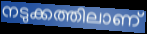
നടുക്കത്തിലാണ്